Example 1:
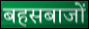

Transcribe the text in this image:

बहसबाजों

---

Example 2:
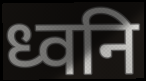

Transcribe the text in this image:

ध्‍वनि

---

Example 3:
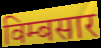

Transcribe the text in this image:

विम्बसार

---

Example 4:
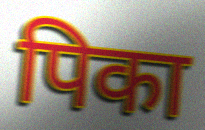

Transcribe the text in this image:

पिका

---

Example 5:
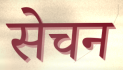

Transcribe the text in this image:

सेचन